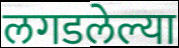
लगडलेल्या